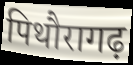
पिथौरागढ़